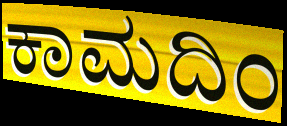
ಕಾಮದಿಂ